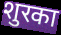
शुरका